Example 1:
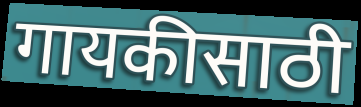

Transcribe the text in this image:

गायकीसाठी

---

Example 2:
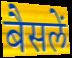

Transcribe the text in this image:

बैसलें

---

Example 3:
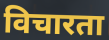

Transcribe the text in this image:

विचारता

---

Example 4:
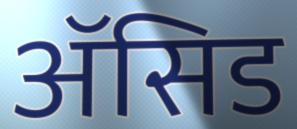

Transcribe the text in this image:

ॲसिड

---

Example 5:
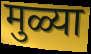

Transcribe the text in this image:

मुळ्या